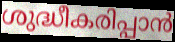
ശുദ്ധീകരിപ്പാൻ